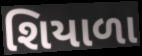
શિયાળા